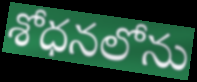
శోధనలోను